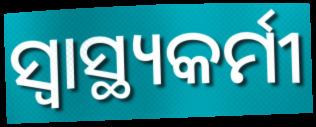
ସ୍ୱାସ୍ଥ୍ୟକର୍ମୀ